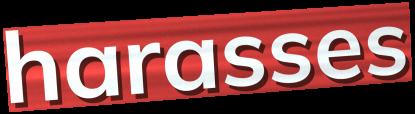
harasses